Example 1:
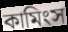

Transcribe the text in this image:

কামিংস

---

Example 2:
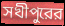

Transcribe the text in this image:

সখীপুরের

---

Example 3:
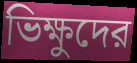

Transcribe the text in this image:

ভিক্ষুদের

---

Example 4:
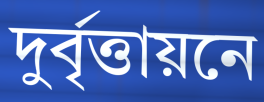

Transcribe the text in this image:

দুর্বৃত্তায়নে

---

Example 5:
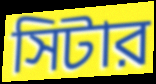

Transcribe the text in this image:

সিটার